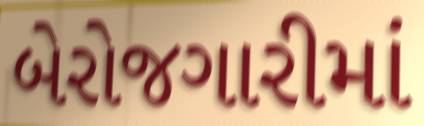
બેરોજગારીમાં